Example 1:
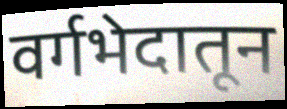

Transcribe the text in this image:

वर्गभेदातून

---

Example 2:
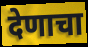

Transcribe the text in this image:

देणाचा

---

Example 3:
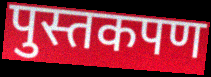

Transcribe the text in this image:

पुस्तकपण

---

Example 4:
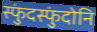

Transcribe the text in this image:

स्फुंदस्फुंदोनि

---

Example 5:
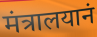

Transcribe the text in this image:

मंत्रालयानं